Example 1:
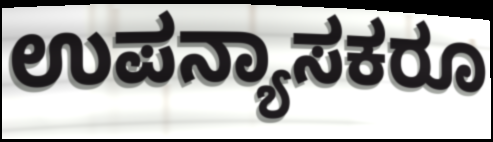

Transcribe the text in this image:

ಉಪನ್ಯಾಸಕರೂ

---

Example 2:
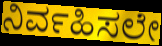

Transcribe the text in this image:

ನಿರ್ವಹಿಸಲೇ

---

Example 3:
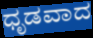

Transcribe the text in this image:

ಧೃಡವಾದ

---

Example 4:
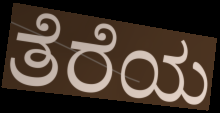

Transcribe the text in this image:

ತೆರೆಯ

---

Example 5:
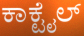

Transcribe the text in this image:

ಕಾಕ್ಟೈಲ್